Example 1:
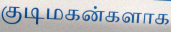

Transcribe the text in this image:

குடிமகன்களாக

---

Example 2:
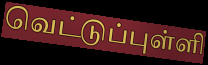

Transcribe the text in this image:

வெட்டுப்புள்ளி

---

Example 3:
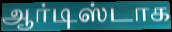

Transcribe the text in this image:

ஆர்டிஸ்டாக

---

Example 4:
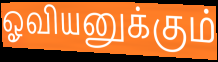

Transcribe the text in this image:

ஓவியனுக்கும்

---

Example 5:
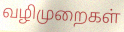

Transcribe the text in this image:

வழிமுறைகள்